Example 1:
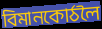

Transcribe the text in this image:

বিমানকোঠলৈ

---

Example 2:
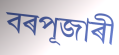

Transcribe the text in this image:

বৰপূজাৰী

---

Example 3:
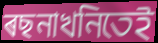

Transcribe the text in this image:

ৰছনাখনিতেই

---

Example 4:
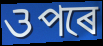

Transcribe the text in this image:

ওপৰে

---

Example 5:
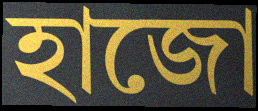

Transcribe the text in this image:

হাজো